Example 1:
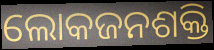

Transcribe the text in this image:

ଲୋକଜନଶକ୍ତି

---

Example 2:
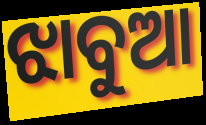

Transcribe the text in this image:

ଝାବୁଆ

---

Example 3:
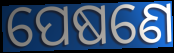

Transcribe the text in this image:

ପେଷଣେ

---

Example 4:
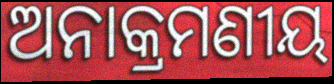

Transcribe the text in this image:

ଅନାକ୍ରମଣୀୟ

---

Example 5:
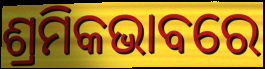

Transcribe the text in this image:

ଶ୍ରମିକଭାବରେ